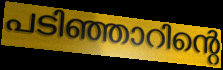
പടിഞ്ഞാറിന്റെ